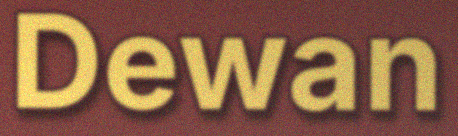
Dewan